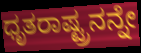
ಧೃತರಾಷ್ಟ್ರನನ್ನೇ